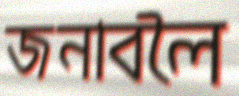
জনাবলৈ